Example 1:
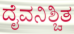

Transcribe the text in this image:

ದೈವನಿಶ್ಚಿತ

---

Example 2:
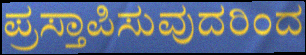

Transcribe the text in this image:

ಪ್ರಸ್ತಾಪಿಸುವುದರಿಂದ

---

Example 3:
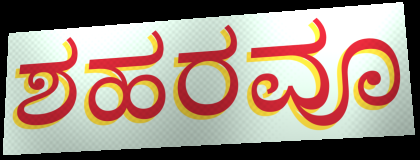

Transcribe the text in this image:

ಶಹರವೂ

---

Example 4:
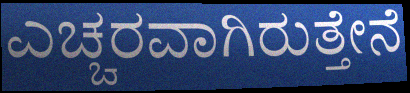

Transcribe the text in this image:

ಎಚ್ಚರವಾಗಿರುತ್ತೇನೆ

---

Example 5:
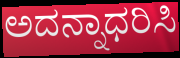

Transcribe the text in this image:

ಅದನ್ನಾಧರಿಸಿ